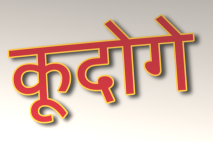
कूदोगे